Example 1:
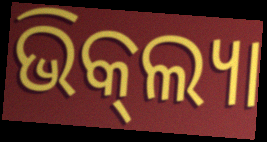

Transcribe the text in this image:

ଭିକ୍‌ଲ୍ୟା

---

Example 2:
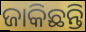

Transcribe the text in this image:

ଜାକିଛନ୍ତି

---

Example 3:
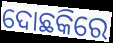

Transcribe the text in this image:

ଦୋଛକିରେ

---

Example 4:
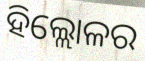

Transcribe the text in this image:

ହିଲ୍ଲୋଳର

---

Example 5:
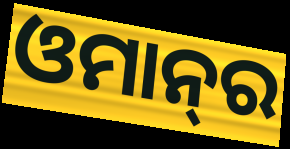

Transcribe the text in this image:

ଓମାନ୍‌ର